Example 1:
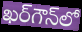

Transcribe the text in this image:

ఖర్‌గౌన్‌లో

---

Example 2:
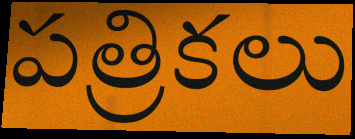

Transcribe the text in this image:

పత్రికలు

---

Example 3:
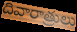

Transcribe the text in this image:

దివారాత్రులు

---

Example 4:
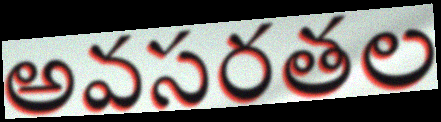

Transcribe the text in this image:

అవసరతల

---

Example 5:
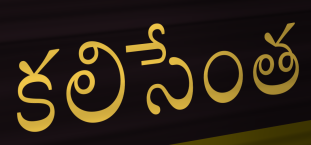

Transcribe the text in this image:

కలిసేంత